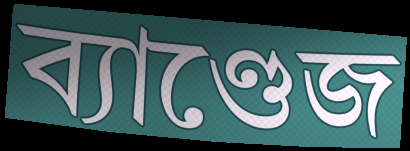
ব্যাণ্ডেজ